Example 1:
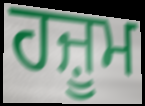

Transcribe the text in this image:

ਹਜ਼ੂਮ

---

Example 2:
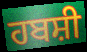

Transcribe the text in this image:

ਹਬਸ਼ੀ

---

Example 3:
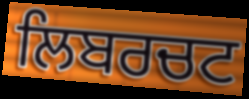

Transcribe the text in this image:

ਲਿਬਰਚਟ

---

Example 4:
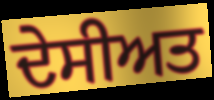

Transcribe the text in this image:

ਦੇਸੀਅਤ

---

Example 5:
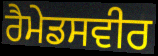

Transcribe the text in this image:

ਰੈਮੇਡਸਵੀਰ